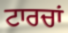
ਟਾਰਚਾਂ